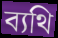
ব্যথি